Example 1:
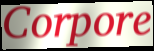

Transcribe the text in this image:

Corpore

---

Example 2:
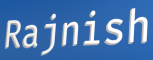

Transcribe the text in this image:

Rajnish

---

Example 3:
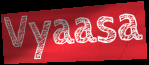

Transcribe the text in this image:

Vyaasa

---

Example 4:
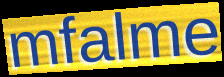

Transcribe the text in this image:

mfalme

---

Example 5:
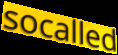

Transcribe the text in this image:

socalled